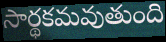
సార్థకమవుతుంది